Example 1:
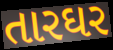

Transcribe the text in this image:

તારઘર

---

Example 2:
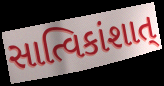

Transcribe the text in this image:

સાત્વિકાંશાત્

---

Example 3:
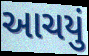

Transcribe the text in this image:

આચયું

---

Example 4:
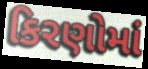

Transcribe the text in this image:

કિરણોમાં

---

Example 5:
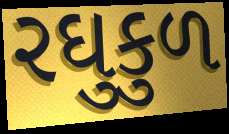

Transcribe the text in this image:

રઘુકુળ